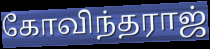
கோவிந்தராஜ்